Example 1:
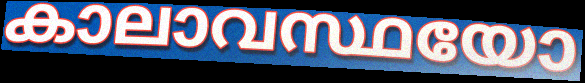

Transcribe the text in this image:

കാലാവസ്ഥയോ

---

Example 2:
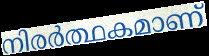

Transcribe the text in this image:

നിരർത്ഥകമാണ്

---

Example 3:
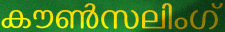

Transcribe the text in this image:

കൗൺസലിംഗ്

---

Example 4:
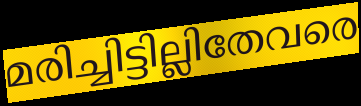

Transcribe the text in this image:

മരിച്ചിട്ടില്ലിതേവരെ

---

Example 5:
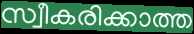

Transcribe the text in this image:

സ്വീകരിക്കാത്ത